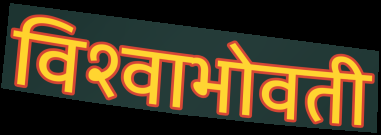
विश्वाभोवती